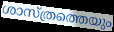
ശാസ്ത്രത്തെയും